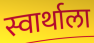
स्वार्थाला